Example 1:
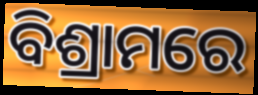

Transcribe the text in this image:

ବିଶ୍ରାମରେ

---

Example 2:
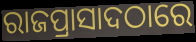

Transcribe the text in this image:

ରାଜପ୍ରାସାଦଠାରେ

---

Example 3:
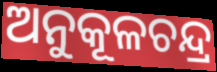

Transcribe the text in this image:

ଅନୁକୂଳଚନ୍ଦ୍ର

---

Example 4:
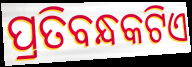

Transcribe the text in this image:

ପ୍ରତିବନ୍ଧକଟିଏ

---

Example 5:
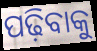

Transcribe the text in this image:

ପଢ଼ିବାକୁ